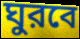
ঘুরবে